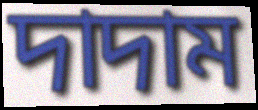
দাদাম